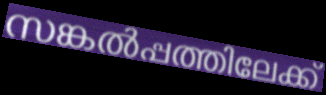
സങ്കൽപ്പത്തിലേക്ക്